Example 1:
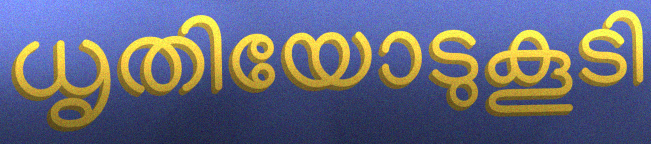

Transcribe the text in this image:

ധൃതിയോടുകൂടി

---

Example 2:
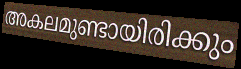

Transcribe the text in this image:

അകലമുണ്ടായിരിക്കും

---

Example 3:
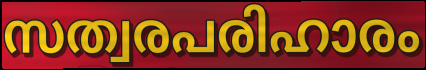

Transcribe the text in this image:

സത്വരപരിഹാരം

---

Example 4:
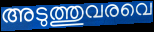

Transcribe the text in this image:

അടുത്തുവരവെ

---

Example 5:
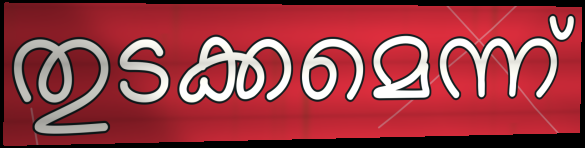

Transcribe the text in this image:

തുടക്കമെന്ന്